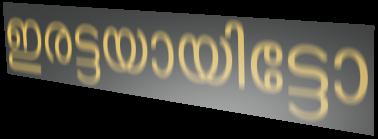
ഇരട്ടയായിട്ടോ